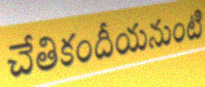
చేతికందీయనుంటి